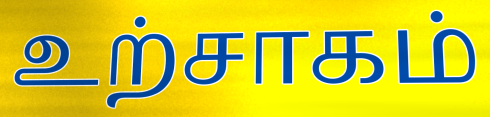
உற்சாகம்